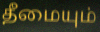
தீமையும்